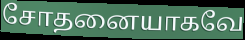
சோதனையாகவே